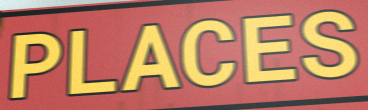
PLACES